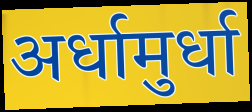
अर्धामुर्धा